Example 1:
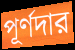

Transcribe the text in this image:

পূর্ণদার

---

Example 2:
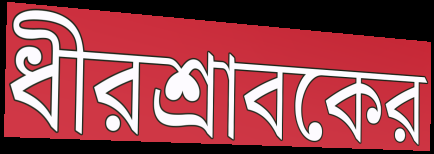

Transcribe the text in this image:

ধীরশ্রাবকের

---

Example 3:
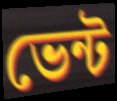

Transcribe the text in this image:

ভেন্ট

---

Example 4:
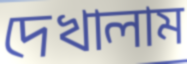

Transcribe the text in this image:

দেখালাম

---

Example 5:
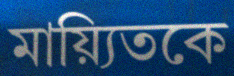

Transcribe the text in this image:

মায়্যিতকে